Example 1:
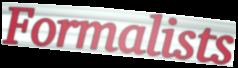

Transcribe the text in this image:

Formalists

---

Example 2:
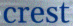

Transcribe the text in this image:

crest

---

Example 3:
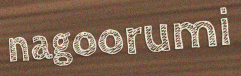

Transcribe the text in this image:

nagoorumi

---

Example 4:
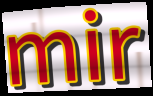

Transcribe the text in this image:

mir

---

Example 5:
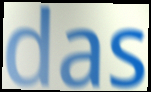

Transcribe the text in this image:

das